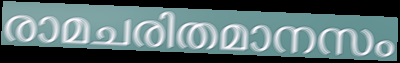
രാമചരിതമാനസം